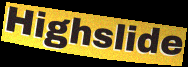
Highslide